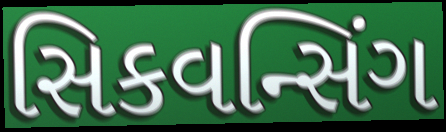
સિકવન્સિંગ